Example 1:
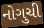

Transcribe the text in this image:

નોગુચી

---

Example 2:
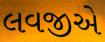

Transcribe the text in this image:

લવજીએ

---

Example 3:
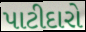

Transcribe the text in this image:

પાટીદારો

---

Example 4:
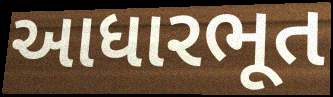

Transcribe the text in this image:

આધારભૂત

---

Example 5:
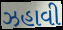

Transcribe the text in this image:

ઝહાવી